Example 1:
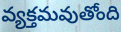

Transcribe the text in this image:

వ్యక్తమవుతోంది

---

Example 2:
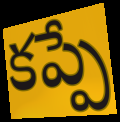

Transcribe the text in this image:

కప్పే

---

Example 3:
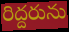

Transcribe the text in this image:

రిద్దరును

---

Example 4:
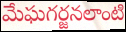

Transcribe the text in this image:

మేఘగర్జనలాంటి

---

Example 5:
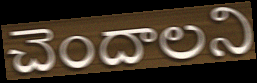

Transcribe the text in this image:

చెందాలని